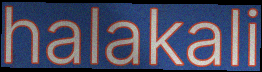
halakali